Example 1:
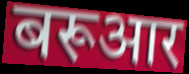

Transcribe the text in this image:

बरूआर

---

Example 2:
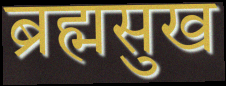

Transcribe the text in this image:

ब्रह्मसुख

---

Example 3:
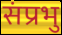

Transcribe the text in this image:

संप्रभु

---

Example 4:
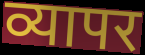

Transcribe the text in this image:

व्यापर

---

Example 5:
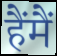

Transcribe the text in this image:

हैंमैं